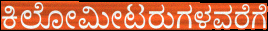
ಕಿಲೋಮೀಟರುಗಳವರೆಗೆ